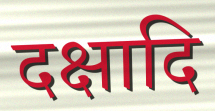
दक्षादि